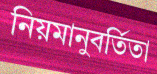
নিয়মানুবর্তিতা